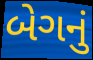
બેગનું